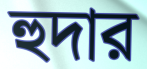
হুদার